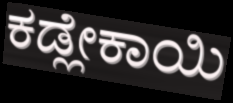
ಕಡ್ಲೇಕಾಯಿ